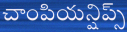
చాంపియన్షిప్స్